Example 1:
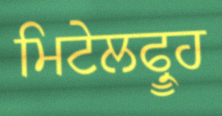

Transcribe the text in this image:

ਮਿਟੇਲਫ੍ਰੂਹ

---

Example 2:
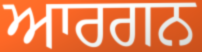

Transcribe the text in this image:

ਆਰਗਨ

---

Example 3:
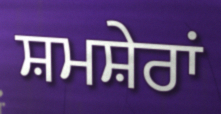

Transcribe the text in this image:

ਸ਼ਮਸ਼ੇਰਾਂ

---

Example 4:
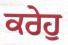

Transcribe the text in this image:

ਕਰੇਹੁ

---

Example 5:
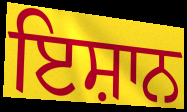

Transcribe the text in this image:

ਇਸ਼ਾਨ